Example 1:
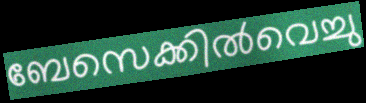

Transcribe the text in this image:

ബേസെക്കിൽവെച്ചു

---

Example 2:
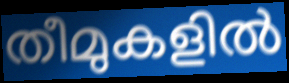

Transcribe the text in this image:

തീമുകളിൽ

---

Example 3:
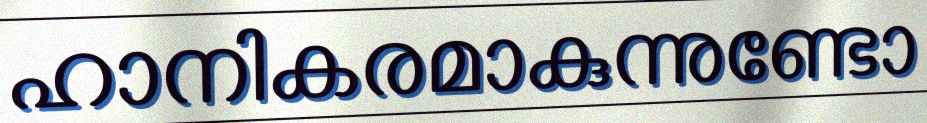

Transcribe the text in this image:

ഹാനികരമാകുന്നുണ്ടോ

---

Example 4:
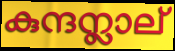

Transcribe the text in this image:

കുന്ദന്ലാല്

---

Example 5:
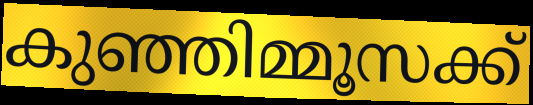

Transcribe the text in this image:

കുഞ്ഞിമ്മൂസക്ക്